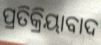
ପ୍ରତିକ୍ରିୟାବାଦ